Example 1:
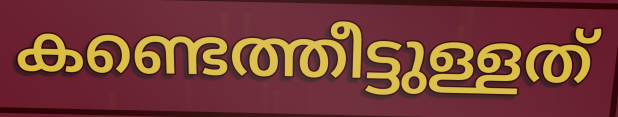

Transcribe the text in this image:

കണ്ടെത്തീട്ടുള്ളത്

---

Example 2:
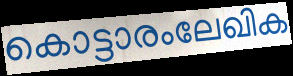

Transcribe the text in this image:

കൊട്ടാരംലേഖിക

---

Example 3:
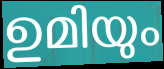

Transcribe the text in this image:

ഉമിയും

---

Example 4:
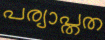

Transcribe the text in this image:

പര്യാപ്തത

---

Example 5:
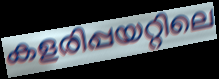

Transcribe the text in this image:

കളരിപ്പയറ്റിലെ